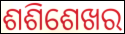
ଶଶିଶେଖର